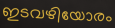
ഇടവഴിയോരം